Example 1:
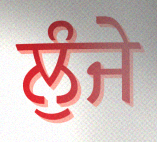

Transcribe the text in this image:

ਲੁੰਜੇ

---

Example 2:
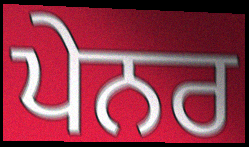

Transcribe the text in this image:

ਪੇਨਰ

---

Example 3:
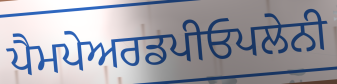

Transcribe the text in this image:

ਪੈਮਪੇਅਰਡਪੀਓਪਲੇਨੀ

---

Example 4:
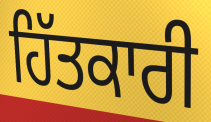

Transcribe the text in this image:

ਹਿੱਤਕਾਰੀ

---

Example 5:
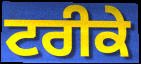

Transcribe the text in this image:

ਟਰੀਕੇ